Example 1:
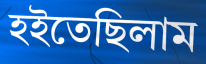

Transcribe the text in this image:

হইতেছিলাম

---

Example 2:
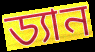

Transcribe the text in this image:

ড্যান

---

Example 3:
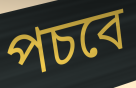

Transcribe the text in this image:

পচবে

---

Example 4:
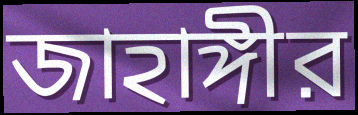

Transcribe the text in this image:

জাহাঙ্গীর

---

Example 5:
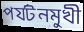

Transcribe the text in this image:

পর্যটনমুখী